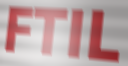
FTIL